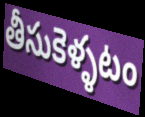
తీసుకెళ్ళటం